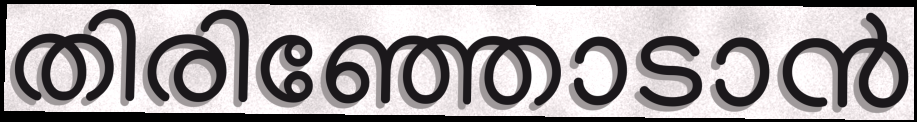
തിരിഞ്ഞോടാൻ